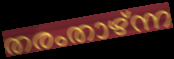
തരംതാഴ്ന്ന